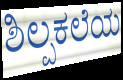
ಶಿಲ್ಪಕಲೆಯ